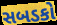
સબડકો